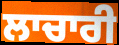
ਲਾਚਾਰੀ